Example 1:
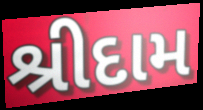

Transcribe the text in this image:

શ્રીદામ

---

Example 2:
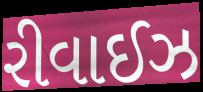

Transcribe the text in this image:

રીવાઈઝ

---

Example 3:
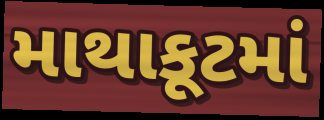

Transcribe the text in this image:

માથાકૂટમાં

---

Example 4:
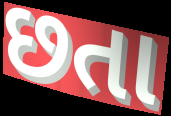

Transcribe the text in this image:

છતા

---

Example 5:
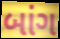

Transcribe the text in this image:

બાંગ